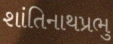
શાંતિનાથપ્રભુ